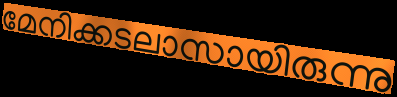
മേനിക്കടലാസായിരുന്നു